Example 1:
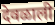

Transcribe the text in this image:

देवळाली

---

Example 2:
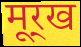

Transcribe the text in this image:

मूर्ख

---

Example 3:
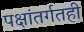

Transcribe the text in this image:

पक्षांतर्गतही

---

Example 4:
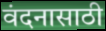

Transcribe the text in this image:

वंदनासाठी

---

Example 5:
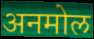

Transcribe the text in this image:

अनमोल